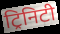
ट्रिनिटी